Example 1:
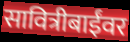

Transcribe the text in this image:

सावित्रीबाईंवर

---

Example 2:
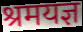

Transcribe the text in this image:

श्रमयज्ञ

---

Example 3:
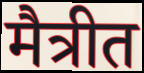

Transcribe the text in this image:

मैत्रीत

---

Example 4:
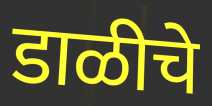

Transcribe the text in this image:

डाळीचे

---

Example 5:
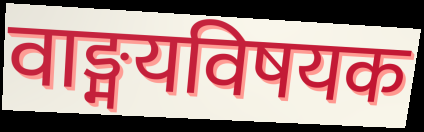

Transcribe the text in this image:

वाङ्मयविषयक